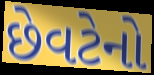
છેવટેનો